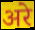
अरे